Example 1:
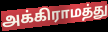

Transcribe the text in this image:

அக்கிராமத்து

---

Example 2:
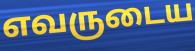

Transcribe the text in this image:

எவருடைய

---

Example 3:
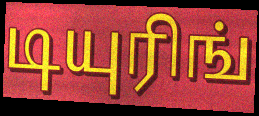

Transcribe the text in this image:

டியுரிங்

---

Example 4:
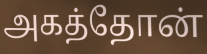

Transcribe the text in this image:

அகத்தோன்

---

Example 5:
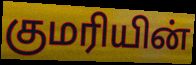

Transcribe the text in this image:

குமரியின்